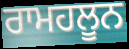
ਰਾਮਹਲੂਨ